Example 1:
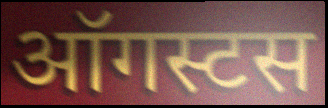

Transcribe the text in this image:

ऑगस्टस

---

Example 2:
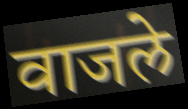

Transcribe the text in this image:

वाजले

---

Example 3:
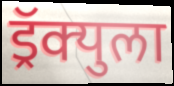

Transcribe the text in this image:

ड्रॅक्युला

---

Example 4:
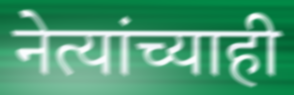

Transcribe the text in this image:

नेत्यांच्याही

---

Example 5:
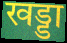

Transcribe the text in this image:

खड्डा